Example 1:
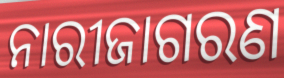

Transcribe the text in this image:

ନାରୀଜାଗରଣ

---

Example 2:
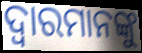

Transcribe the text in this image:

ଦ୍ୱାରମାନଙ୍କୁ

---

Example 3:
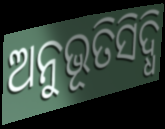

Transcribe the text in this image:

ଅନୁଭୂତିସିଦ୍ଧି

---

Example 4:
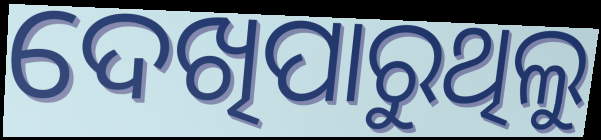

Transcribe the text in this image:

ଦେଖିପାରୁଥିଲୁ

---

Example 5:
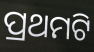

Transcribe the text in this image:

ପ୍ରଥମଟି